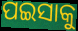
ପଇସାକୁ